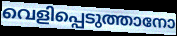
വെളിപ്പെടുത്താനോ